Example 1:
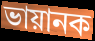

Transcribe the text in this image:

ভায়ানক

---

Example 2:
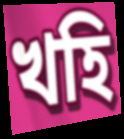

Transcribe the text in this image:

খহি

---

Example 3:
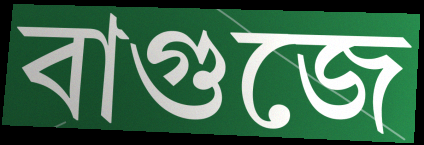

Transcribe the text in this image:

বাগুজে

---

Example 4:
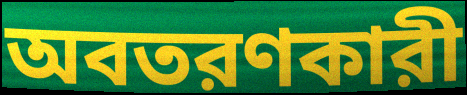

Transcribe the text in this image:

অবতরণকারী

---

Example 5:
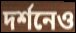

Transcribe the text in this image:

দর্শনেও